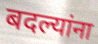
बदल्यांना